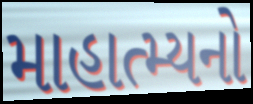
માહાત્મ્યનો